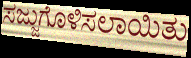
ಸಜ್ಜುಗೊಳಿಸಲಾಯಿತು